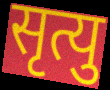
सृत्यु